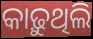
କାଢ଼ୁଥିଲି